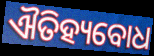
ଐତିହ୍ୟବୋଧ